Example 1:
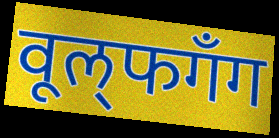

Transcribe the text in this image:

वूल्फगँग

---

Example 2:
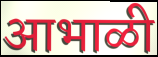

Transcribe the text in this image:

आभाळी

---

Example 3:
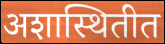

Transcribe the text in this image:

अशास्थितीत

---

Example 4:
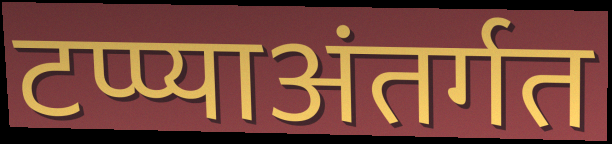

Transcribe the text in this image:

टप्प्याअंतर्गत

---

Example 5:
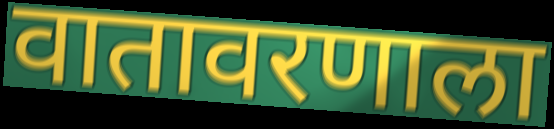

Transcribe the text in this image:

वातावरणाला